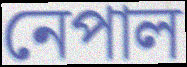
নেপাল